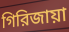
গিরিজায়া